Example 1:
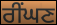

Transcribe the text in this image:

ਰੀਂਘਣ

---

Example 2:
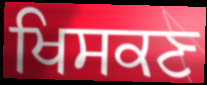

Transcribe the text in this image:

ਖਿਸਕਣ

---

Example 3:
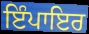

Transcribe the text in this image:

ਇੰਪਾਇਰ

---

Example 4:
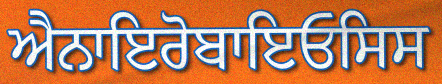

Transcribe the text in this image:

ਐਨਾਇਰੋਬਾਇਓਸਿਸ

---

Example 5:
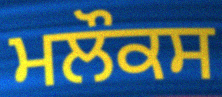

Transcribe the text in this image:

ਮਲੌਕਸ